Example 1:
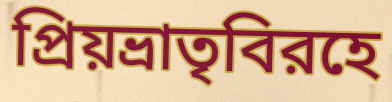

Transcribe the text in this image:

প্রিয়ভ্রাতৃবিরহে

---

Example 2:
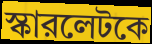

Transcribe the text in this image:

স্কারলেটকে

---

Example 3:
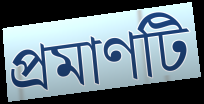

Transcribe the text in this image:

প্রমাণটি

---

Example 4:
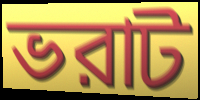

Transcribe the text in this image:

ভরাট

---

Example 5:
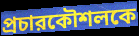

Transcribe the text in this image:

প্রচারকৌশলকে